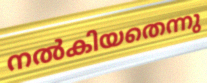
നൽകിയതെന്നു